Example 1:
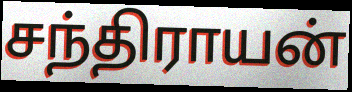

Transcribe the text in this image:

சந்திராயன்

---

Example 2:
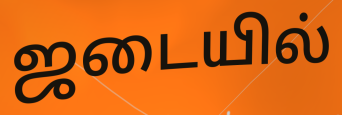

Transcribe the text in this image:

ஜடையில்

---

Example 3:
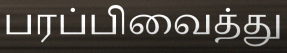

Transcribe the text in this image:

பரப்பிவைத்து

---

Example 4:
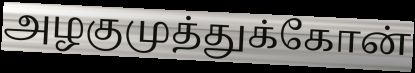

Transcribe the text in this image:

அழகுமுத்துக்கோன்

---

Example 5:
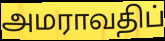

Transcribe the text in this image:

அமராவதிப்